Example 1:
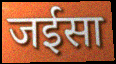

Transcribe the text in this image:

जईसा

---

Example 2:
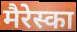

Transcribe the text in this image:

मैरेस्का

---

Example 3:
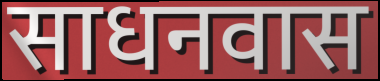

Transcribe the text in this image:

साधनवास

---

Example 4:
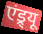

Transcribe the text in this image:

एंड्र्यू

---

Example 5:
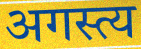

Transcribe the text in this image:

अगस्त्य